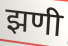
झणी